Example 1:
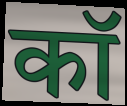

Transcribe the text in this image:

कॉ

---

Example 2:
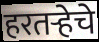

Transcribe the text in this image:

हरतऱ्हेचे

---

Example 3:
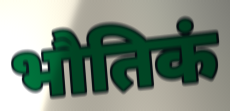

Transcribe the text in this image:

भौतिकं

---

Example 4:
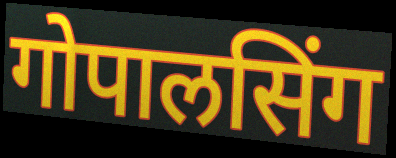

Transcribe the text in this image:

गोपालसिंग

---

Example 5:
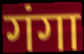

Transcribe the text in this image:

गंगा